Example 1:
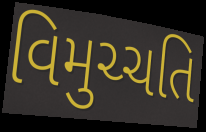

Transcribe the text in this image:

વિમુચ્ચતિ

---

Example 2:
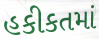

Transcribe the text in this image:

હકીકતમાં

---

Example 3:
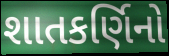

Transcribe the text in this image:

શાતકર્ણિનો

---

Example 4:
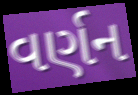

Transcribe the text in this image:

વર્ણન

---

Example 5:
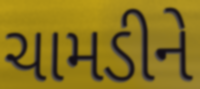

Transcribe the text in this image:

ચામડીને